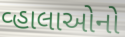
વ્હાલાઓનો